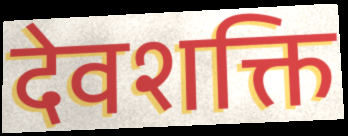
देवशक्ति